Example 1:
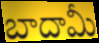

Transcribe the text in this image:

బాదామీ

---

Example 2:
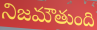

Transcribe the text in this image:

నిజమౌతుంది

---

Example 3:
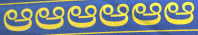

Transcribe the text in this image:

ఆఆఆఆఆఆ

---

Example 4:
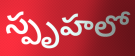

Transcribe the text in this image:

స్పృహలో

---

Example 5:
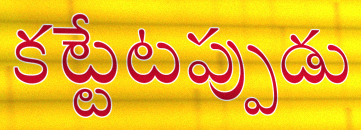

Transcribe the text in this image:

కట్టేటప్పుడు